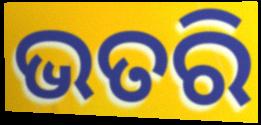
ଭତରି